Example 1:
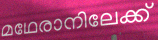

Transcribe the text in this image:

മഥേരാനിലേക്ക്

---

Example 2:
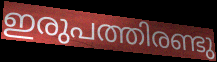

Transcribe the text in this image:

ഇരുപത്തിരണ്ടു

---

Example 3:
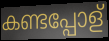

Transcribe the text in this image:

കണ്ടപ്പോള്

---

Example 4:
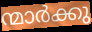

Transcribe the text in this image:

ന്മാർക്കു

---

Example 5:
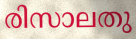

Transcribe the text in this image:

രിസാലതു